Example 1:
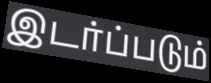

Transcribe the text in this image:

இடர்ப்படும்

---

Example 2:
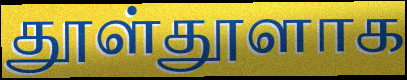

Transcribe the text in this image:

தூள்தூளாக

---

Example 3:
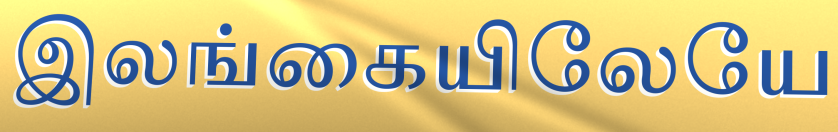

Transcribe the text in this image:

இலங்கையிலேயே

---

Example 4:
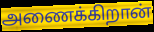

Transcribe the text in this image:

அணைக்கிறான்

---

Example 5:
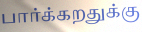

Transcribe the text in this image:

பார்க்கறதுக்கு